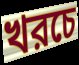
খরচে